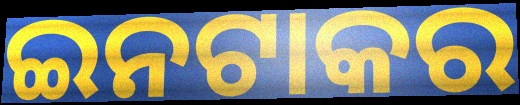
ଇନଟାକର